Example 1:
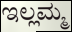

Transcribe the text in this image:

ಇಲ್ಲಮ್ಮ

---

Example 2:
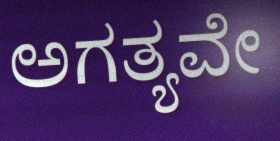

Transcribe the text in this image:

ಅಗತ್ಯವೇ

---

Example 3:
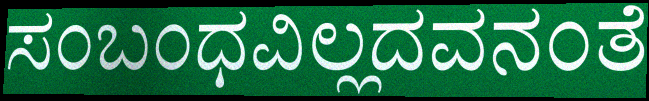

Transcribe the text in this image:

ಸಂಬಂಧವಿಲ್ಲದವನಂತೆ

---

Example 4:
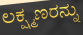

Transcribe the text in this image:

ಲಕ್ಷ್ಮಣರನ್ನು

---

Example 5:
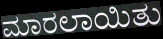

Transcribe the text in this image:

ಮಾರಲಾಯಿತು